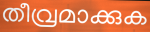
തീവ്രമാക്കുക